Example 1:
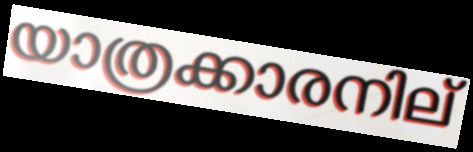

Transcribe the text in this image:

യാത്രക്കാരനില്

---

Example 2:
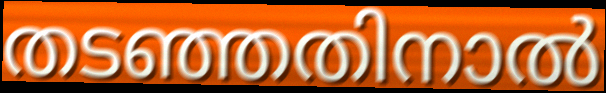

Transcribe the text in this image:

തടഞ്ഞതിനാൽ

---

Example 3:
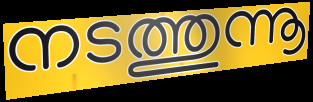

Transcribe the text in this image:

നടത്തുന്നൂ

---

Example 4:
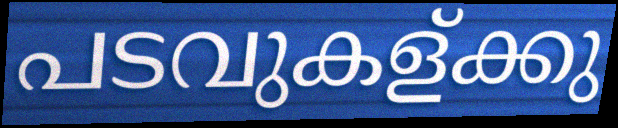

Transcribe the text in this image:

പടവുകള്ക്കു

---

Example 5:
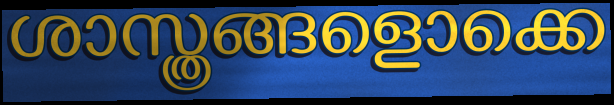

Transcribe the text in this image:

ശാസ്ത്രങ്ങളൊക്കെ